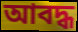
আবদ্ধ